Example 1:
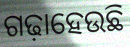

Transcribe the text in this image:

ଗଢ଼ାହେଉଛି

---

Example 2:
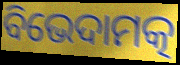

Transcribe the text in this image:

ବିଭେଦାମତ୍କ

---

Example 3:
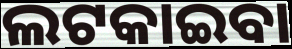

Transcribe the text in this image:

ଲଟକାଇବା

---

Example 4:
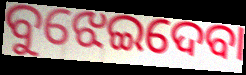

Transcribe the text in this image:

ବୁଝେଇଦେବା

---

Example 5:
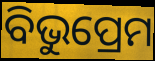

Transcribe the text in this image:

ବିଭୁପ୍ରେମ